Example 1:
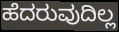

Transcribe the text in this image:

ಹೆದರುವುದಿಲ್ಲ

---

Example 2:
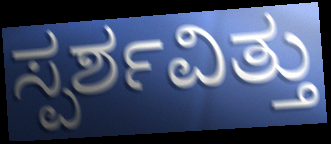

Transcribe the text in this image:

ಸ್ಪರ್ಶವಿತ್ತು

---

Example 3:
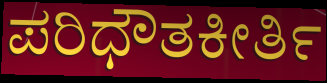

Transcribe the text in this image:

ಪರಿಧೌತಕೀರ್ತಿ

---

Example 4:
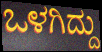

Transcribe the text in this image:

ಒಳಗಿದ್ದು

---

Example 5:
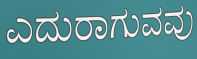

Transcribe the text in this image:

ಎದುರಾಗುವವು